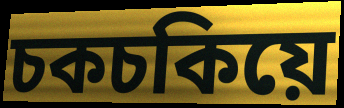
চকচকিয়ে